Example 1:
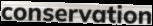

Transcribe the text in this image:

conservation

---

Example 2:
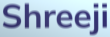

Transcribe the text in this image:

Shreeji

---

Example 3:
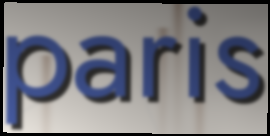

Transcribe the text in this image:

paris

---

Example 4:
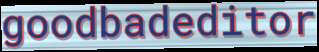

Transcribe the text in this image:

goodbadeditor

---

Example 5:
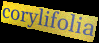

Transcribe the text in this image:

corylifolia